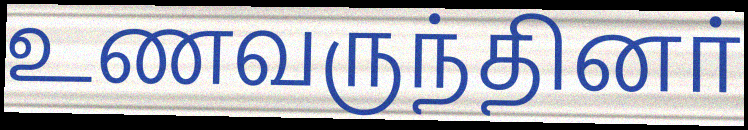
உணவருந்தினர்